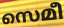
സെമീ